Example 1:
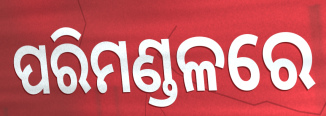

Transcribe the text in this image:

ପରିମଣ୍ଡଳରେ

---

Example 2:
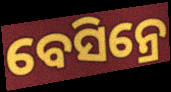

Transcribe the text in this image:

ବେସିନ୍ରେ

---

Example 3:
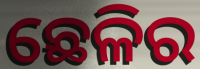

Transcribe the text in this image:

ଛେଳିର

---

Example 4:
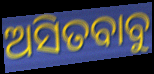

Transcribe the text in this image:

ଅସିତବାବୁ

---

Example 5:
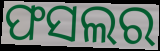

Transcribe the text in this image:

ଫସଲର